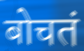
बोचतं